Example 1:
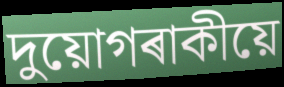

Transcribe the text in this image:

দুয়োগৰাকীয়ে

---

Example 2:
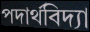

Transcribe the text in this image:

পদাৰ্থবিদ্যা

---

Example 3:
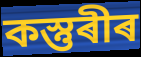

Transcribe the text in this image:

কস্তুৰীৰ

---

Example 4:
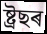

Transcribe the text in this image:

ষ্ট্ৰছৰ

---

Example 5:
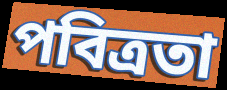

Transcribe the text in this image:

পবিত্ৰতা